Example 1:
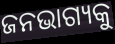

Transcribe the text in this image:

ଜନଭାଗ୍ୟକୁ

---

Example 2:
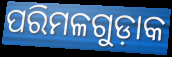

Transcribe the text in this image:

ପରିମଳଗୁଡ଼ାକ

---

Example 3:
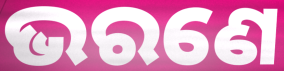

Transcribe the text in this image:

ଭରଣେ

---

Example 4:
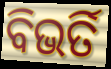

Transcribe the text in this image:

ବିଭର୍ତି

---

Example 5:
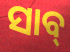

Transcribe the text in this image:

ସାବ୍